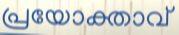
പ്രയോക്താവ്